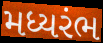
મધ્યરંભ